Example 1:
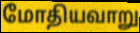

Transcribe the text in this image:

மோதியவாறு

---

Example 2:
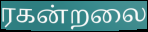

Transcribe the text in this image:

ரகன்றலை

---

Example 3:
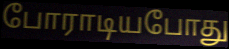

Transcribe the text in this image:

போராடியபோது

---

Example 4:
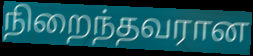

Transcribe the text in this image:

நிறைந்தவரான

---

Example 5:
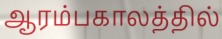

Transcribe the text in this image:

ஆரம்பகாலத்தில்